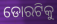
ଡୋରଟିକୁ